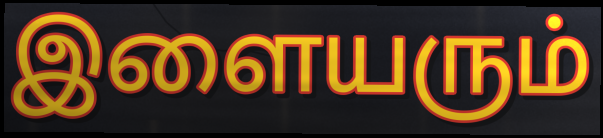
இளையரும்